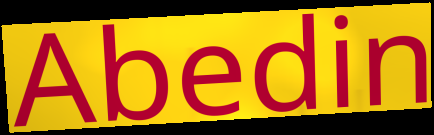
Abedin